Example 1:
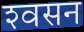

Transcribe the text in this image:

श्वसन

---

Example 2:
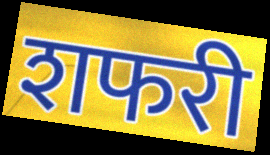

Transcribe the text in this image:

शफरी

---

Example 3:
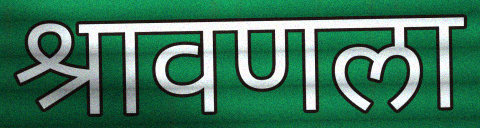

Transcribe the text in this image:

श्रावणला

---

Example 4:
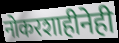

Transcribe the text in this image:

नोकरशाहीनेही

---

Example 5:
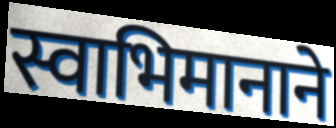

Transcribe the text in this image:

स्वाभिमानाने